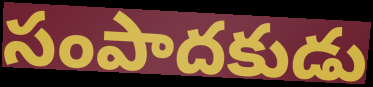
సంపాదకుడు